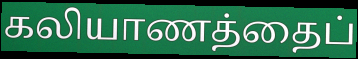
கலியாணத்தைப்